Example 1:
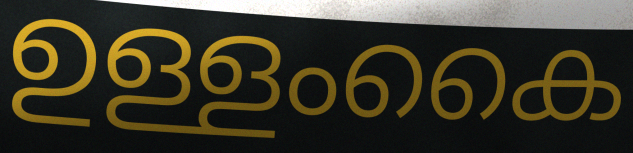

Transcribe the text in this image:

ഉള്ളംകൈ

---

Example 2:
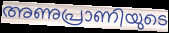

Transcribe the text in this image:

അണുപ്രാണിയുടെ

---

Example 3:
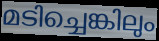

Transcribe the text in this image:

മടിച്ചെങ്കിലും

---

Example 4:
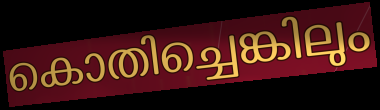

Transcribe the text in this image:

കൊതിച്ചെങ്കിലും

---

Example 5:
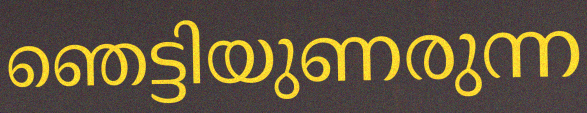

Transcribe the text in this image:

ഞെട്ടിയുണരുന്ന